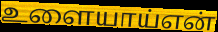
உளையாய்என்